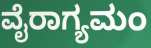
ವೈರಾಗ್ಯಮಂ